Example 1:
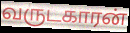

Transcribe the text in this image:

வருடகாரன்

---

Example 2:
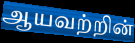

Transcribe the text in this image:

ஆயவற்றின்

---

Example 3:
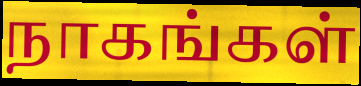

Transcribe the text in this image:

நாகங்கள்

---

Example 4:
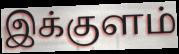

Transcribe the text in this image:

இக்குளம்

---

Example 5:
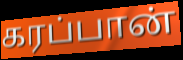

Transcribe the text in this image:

கரப்பான்